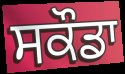
ਸਕੌਡਾ